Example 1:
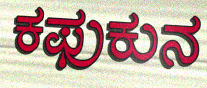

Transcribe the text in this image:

ಕಫುಕುನ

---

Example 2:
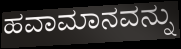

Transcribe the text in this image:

ಹವಾಮಾನವನ್ನು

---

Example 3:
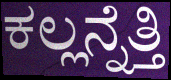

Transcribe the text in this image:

ಕಲ್ಲನ್ನೆತ್ತಿ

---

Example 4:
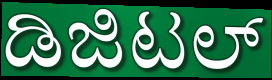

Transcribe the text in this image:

ಡಿಜಿಟಲ್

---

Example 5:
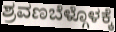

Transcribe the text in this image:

ಶ್ರವಣಬೆಳ್ಗೊಳಕ್ಕೆ